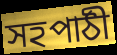
সহপাঠী